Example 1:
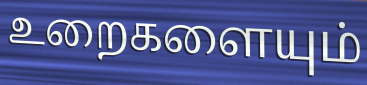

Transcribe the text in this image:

உறைகளையும்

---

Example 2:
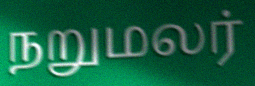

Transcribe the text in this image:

நறுமலர்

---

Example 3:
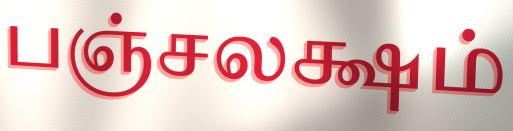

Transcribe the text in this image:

பஞ்சலக்ஷம்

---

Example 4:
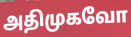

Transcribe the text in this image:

அதிமுகவோ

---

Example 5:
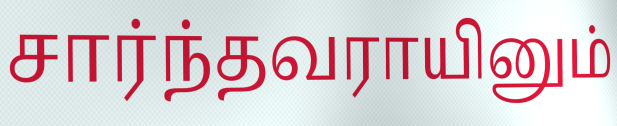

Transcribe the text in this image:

சார்ந்தவராயினும்